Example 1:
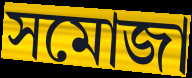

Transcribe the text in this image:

সমোজা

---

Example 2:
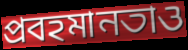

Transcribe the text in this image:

প্রবহমানতাও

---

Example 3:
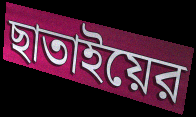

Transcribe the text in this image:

ছাতাইয়ের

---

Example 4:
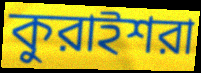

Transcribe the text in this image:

কুরাইশরা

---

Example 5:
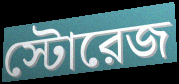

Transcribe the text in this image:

স্টোরেজ